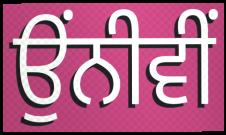
ਉੰਨੀਵੀਂ